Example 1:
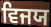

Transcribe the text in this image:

ਵਿਜਯ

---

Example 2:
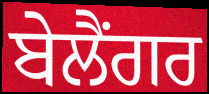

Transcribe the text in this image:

ਬੇਲੈਂਗਰ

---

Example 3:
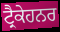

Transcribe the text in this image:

ਟ੍ਰੈਕੇਹਨਰ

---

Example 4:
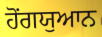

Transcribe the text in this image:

ਹੋਂਗਯੁਆਨ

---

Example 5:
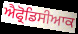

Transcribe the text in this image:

ਐਫ੍ਰੋਡਿਸੀਆਕ